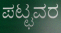
ಪಟ್ಟವರ